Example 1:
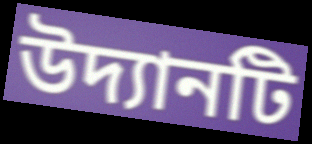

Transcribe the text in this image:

উদ্যানটি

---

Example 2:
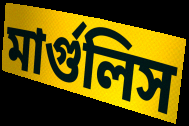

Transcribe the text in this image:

মার্গুলিস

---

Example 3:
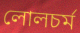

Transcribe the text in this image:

লোলচর্ম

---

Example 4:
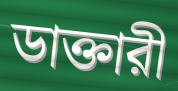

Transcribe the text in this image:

ডাক্তারী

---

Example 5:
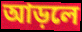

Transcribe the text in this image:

আড়লে